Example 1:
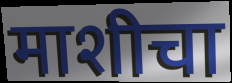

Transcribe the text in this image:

माशीचा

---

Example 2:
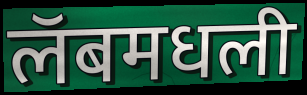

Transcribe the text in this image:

लॅबमधली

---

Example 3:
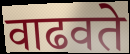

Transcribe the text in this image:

वाढवते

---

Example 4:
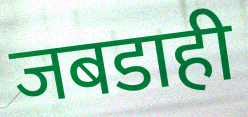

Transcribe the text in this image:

जबडाही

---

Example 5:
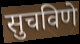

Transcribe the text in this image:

सुचविणे